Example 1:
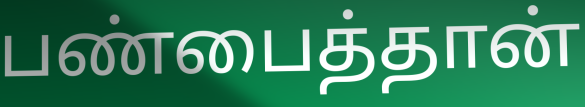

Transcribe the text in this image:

பண்பைத்தான்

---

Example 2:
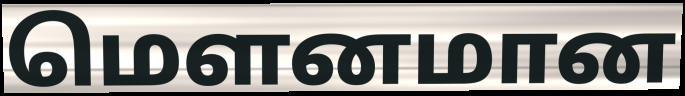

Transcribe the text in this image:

மௌனமான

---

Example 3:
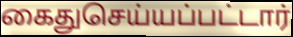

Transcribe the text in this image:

கைதுசெய்யப்பட்டார்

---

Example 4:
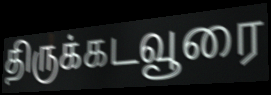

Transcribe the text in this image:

திருக்கடவூரை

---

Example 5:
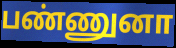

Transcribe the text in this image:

பண்ணுனா